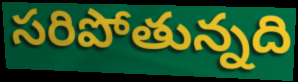
సరిపోతున్నది